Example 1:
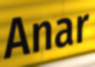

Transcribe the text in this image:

Anar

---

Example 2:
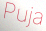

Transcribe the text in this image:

Puja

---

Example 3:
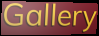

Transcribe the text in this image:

Gallery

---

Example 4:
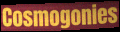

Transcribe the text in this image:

Cosmogonies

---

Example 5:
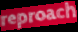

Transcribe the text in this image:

reproach